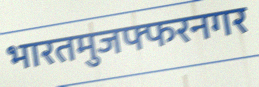
भारतमुजफ्फरनगर